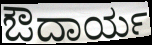
ಔದಾರ್ಯ